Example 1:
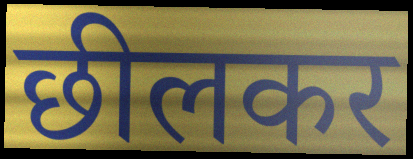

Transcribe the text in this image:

छीलकर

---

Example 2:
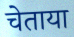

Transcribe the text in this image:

चेताया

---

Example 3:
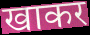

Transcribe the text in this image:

खाकर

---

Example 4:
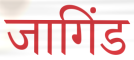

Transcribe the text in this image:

जागिंड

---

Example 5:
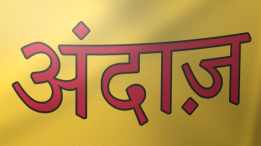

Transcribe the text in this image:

अंदाज़